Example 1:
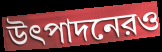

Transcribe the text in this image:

উৎপাদনেরও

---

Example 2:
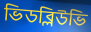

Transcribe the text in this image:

ভিডব্লিউভি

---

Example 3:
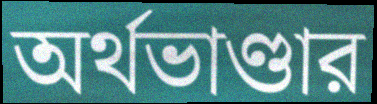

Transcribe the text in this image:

অর্থভাণ্ডার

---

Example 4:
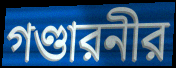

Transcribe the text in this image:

গণ্ডারনীর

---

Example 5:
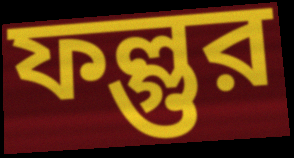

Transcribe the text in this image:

ফল্গুর